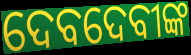
ଦେବଦେବୀଙ୍କ